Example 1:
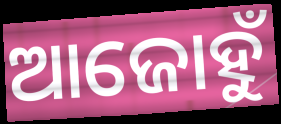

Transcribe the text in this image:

ଆଜୋହୁଁ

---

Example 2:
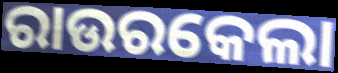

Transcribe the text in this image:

ରାଉରକେଲା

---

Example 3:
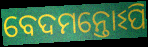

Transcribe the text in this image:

ବେଦମନ୍ତୋଽପି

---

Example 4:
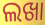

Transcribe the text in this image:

ଲଖା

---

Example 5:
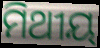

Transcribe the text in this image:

ମିଥୀୟ